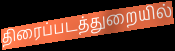
திரைப்படத்துறையில்